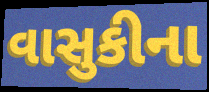
વાસુકીના